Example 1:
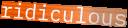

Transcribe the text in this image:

ridiculous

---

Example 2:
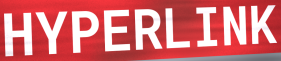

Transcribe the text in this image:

HYPERLINK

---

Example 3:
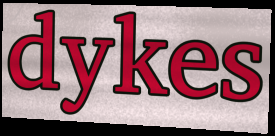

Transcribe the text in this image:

dykes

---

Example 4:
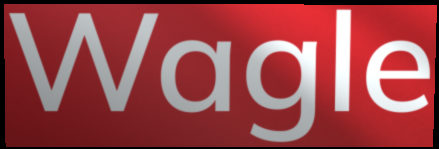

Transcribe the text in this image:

Wagle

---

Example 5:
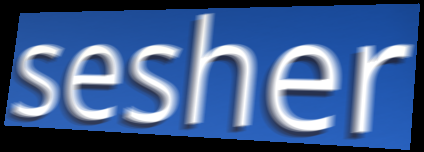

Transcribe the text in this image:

sesher